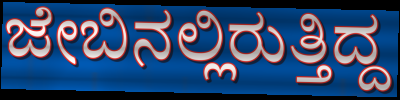
ಜೇಬಿನಲ್ಲಿರುತ್ತಿದ್ದ